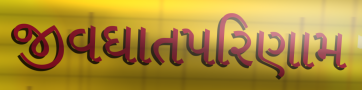
જીવઘાતપરિણામ